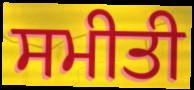
ਸਮੀਤੀ